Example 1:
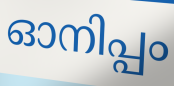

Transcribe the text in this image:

ഓനിപ്പം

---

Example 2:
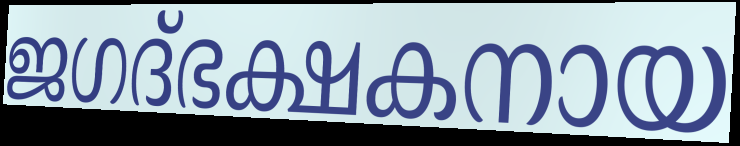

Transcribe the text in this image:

ജഗദ്ഭക്ഷകനായ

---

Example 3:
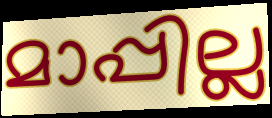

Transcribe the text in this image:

മാപ്പില്ല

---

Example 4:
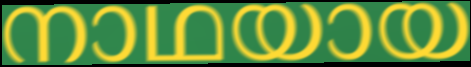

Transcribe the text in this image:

നാഥയായ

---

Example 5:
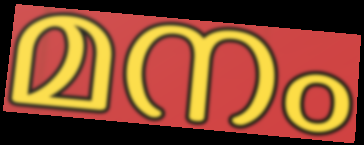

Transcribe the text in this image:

മനം